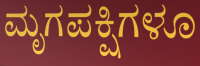
ಮೃಗಪಕ್ಷಿಗಳೂ